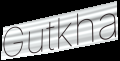
Gutkha